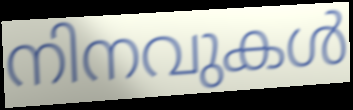
നിനവുകൾ